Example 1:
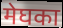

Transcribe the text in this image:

मेघका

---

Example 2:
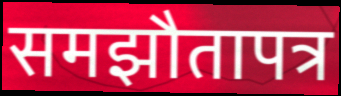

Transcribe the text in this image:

समझौतापत्र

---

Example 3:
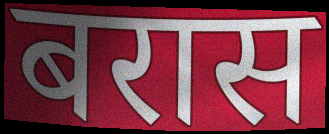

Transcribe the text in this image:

बरास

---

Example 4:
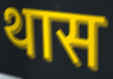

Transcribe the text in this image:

थास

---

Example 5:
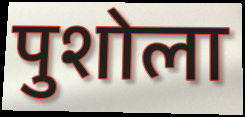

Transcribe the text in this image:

पुशोला